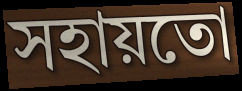
সহায়তো